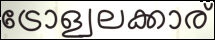
ട്രോള്വലക്കാര്